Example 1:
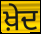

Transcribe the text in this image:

ਖ਼ੇਦ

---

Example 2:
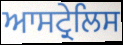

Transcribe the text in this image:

ਆਸਟ੍ਰੇਲਿਸ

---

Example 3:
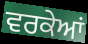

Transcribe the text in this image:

ਵਰਕੇਆਂ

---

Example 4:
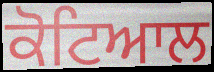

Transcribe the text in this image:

ਕੋਟਿਆਲ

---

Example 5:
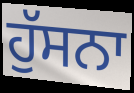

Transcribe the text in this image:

ਹੁੱਸਨਾ